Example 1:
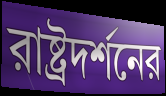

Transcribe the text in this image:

রাষ্ট্রদর্শনের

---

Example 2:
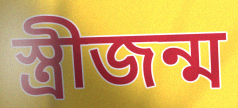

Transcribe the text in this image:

স্ত্রীজন্ম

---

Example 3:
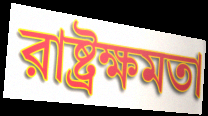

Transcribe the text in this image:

রাষ্ট্রক্ষমতা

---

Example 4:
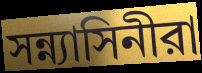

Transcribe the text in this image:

সন্ন্যাসিনীরা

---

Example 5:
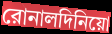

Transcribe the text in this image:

রোনালদিনিয়ো